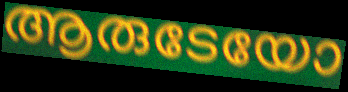
ആരുടേയോ